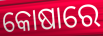
କୋଷାରେ